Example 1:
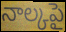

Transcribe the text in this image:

నాల్కపై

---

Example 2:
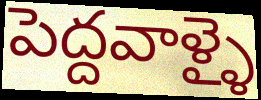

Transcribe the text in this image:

పెద్దవాళ్ళై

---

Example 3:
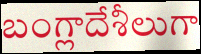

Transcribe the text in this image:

బంగ్లాదేశీలుగా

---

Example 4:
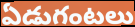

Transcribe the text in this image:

ఏడుగంటలు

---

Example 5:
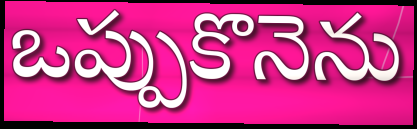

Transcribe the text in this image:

ఒప్పుకొనెను